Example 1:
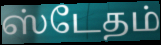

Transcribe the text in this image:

ஸ்டேதம்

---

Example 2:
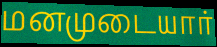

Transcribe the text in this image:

மனமுடையார்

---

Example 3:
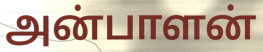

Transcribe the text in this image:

அன்பாளன்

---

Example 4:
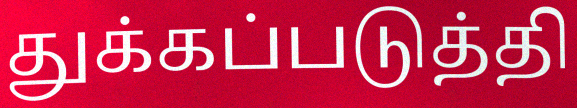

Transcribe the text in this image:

துக்கப்படுத்தி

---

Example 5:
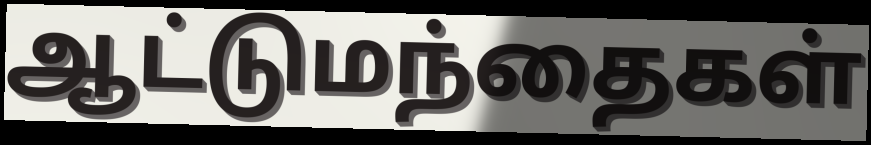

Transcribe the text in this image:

ஆட்டுமந்தைகள்